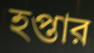
হপ্তার